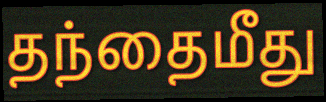
தந்தைமீது